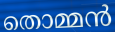
തൊമ്മൻ